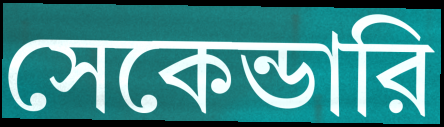
সেকেন্ডারি